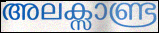
അലക്സാണ്ട്ര